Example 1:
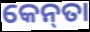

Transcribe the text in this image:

କେନ୍‌ତା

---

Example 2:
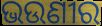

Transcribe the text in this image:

ଭଉଣୀର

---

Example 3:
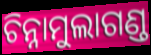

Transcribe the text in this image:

ଚିନ୍ନାମୁଲାଗଣ୍ଡ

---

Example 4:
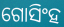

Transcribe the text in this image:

ଗୋସିଂହ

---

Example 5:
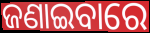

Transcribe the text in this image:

ଜଣାଇବାରେ